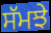
ਸੱਮਝੇ